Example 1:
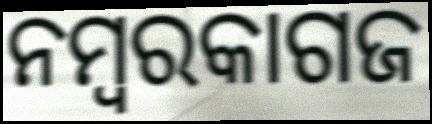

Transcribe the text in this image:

ନମ୍ବରକାଗଜ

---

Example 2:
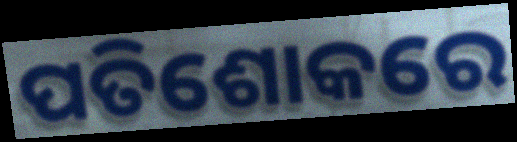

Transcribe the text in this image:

ପତିଶୋକରେ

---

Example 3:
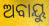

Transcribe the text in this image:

ଅବାୟୁ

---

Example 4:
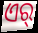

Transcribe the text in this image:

ଏର୍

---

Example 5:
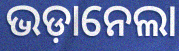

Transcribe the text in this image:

ଭଡ଼ାନେଲା